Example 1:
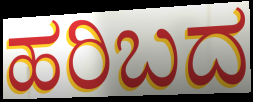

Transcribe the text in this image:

ಹರಿಬದ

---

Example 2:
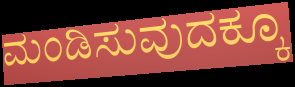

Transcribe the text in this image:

ಮಂಡಿಸುವುದಕ್ಕೂ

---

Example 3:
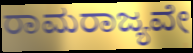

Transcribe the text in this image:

ರಾಮರಾಜ್ಯವೇ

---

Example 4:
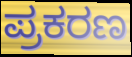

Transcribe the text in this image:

ಪ್ರಕರಣ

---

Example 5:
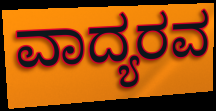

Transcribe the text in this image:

ವಾದ್ಯರವ